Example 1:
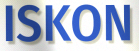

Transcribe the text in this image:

ISKON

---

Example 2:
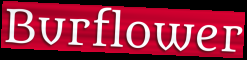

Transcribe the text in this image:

Burflower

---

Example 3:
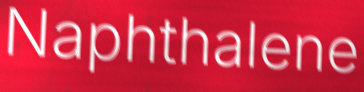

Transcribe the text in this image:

Naphthalene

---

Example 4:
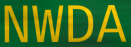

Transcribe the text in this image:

NWDA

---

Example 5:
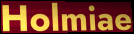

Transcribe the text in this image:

Holmiae